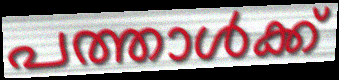
പത്താൾക്ക്